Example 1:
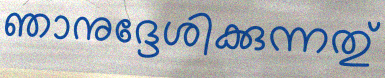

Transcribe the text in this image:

ഞാനുദ്ദേശിക്കുന്നതു്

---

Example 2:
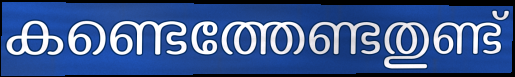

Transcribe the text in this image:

കണ്ടെത്തേണ്ടതുണ്ട്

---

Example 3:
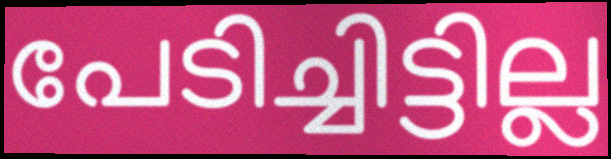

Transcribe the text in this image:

പേടിച്ചിട്ടില്ല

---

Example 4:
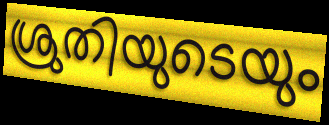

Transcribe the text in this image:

ശ്രുതിയുടെയും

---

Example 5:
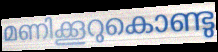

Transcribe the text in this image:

മണിക്കൂറുകൊണ്ടു